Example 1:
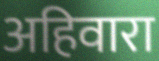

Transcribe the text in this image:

अहिवारा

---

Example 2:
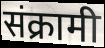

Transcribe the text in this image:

संक्रामी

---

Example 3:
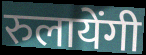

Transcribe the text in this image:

रुलायेंगी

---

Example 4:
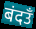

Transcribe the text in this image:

बंदउँ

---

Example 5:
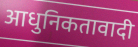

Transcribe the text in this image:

आधुनिकतावादी